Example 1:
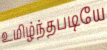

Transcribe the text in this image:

உமிழ்ந்தபடியே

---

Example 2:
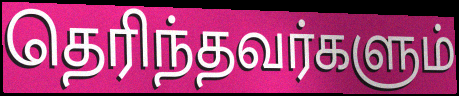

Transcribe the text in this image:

தெரிந்தவர்களும்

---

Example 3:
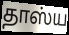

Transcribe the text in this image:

தாஸ்ய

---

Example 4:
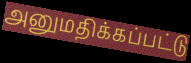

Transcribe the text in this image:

அனுமதிக்கப்பட்டு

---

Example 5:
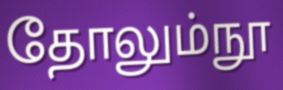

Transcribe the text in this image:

தோலும்நூ